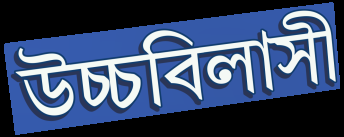
উচ্চবিলাসী